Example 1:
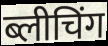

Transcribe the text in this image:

ब्लीचिंग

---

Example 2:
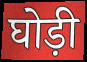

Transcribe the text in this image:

घोड़ी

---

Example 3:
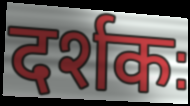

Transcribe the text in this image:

दर्शकः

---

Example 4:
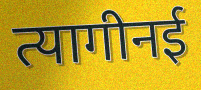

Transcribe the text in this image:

त्यागीनई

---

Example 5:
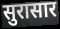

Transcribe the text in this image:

सुरासार